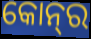
କୋନ୍‌ର